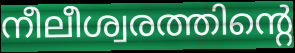
നീലീശ്വരത്തിന്റെ